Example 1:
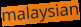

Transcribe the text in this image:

malaysian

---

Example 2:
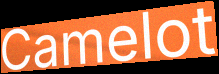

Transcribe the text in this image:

Camelot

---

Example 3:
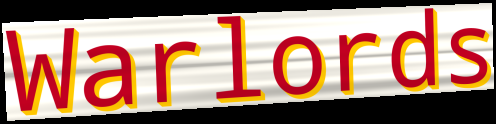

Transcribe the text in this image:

Warlords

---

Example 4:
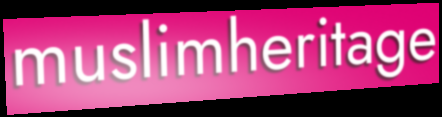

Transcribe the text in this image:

muslimheritage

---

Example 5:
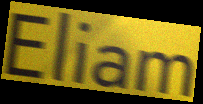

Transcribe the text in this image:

Eliam